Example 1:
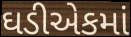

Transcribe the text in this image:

ઘડીએકમાં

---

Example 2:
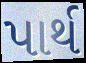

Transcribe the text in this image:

પાર્થ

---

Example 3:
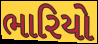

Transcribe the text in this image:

ભારિયો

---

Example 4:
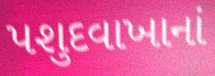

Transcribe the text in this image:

પશુદવાખાનાં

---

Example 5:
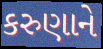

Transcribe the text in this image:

કરુણાને